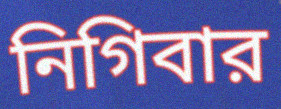
নিগিবার